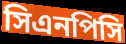
সিএনপিসি